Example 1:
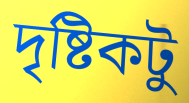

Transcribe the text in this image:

দৃষ্টিকটু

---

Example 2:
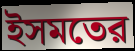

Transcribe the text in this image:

ইসমতের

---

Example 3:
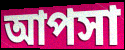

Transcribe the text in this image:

আপসা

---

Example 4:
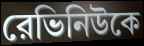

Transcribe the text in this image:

রেভিনিউকে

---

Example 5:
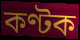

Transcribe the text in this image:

কণ্টক